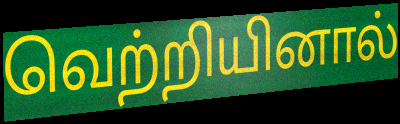
வெற்றியினால்